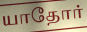
யாதோர்